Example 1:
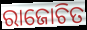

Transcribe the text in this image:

ରାଜୋଚିତ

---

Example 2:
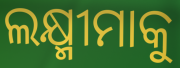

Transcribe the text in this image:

ଲକ୍ଷ୍ମୀମାକୁ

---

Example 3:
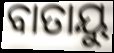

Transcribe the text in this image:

ବାତାୟୁ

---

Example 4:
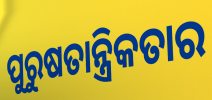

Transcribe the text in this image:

ପୁରୁଷତାନ୍ତ୍ରିକତାର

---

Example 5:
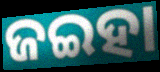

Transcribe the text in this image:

ଜଇହା